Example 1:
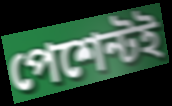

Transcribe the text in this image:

পেশেন্টই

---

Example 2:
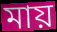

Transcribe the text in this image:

মায়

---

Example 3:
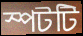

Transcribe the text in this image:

স্পটটি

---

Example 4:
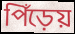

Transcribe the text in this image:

পিঁড়েয়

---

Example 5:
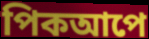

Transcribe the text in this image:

পিকআপে